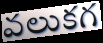
వలుకగ